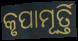
କୃପାମୂର୍ତ୍ତି